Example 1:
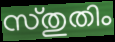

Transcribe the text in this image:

സ്തുതിം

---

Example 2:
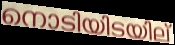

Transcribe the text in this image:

നൊടിയിടയില്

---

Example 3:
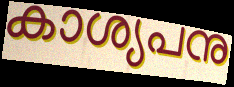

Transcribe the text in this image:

കാശ്യപനു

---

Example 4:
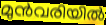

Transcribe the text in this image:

മുൻവരിയിൽ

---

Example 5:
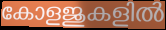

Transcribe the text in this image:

കോളജുകളിൽ